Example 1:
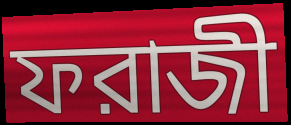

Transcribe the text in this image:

ফরাজী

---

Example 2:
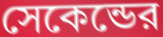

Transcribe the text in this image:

সেকেন্ডের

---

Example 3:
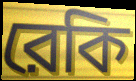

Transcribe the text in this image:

রেকি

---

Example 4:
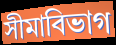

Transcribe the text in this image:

সীমাবিভাগ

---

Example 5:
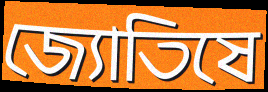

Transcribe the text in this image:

জ্যোতিষে